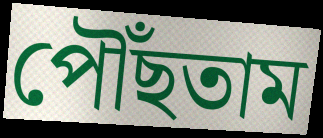
পৌঁছতাম